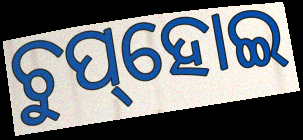
ଚୁପ୍‌ହୋଇ